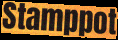
Stamppot